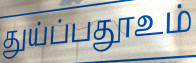
துய்ப்பதூஉம்